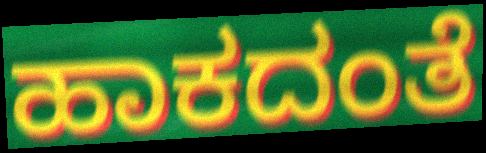
ಹಾಕದಂತೆ